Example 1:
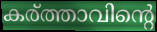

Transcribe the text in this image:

കര്ത്താവിന്റെ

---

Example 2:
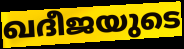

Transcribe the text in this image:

ഖദീജയുടെ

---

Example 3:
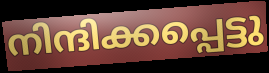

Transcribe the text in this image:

നിന്ദിക്കപ്പെട്ടു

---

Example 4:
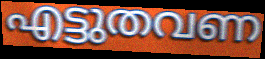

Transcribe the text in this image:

എട്ടുതവണ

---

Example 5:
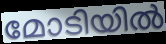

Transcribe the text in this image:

മോടിയിൽ